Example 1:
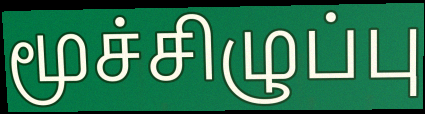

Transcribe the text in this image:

மூச்சிழுப்பு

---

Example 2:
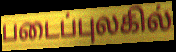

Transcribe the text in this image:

படைப்புலகில்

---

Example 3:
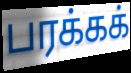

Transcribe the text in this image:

பரக்கக்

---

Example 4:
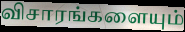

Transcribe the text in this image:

விசாரங்களையும்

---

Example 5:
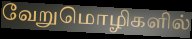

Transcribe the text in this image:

வேறுமொழிகளில்